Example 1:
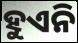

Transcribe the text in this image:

ହୁଏନି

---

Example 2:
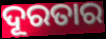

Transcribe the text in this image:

ଦୂରତାର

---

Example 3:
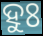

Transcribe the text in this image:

ହୁଃ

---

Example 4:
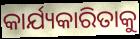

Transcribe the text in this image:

କାର୍ଯ୍ୟକାରିତାକୁ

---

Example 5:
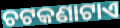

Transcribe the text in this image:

ଚଟକଣାଟାଏ